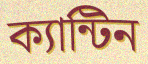
ক্যান্টিন